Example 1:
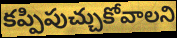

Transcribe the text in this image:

కప్పిపుచ్చుకోవాలని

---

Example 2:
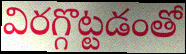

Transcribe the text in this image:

విరగ్గొట్టడంతో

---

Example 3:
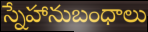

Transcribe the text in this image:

స్నేహానుబంధాలు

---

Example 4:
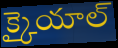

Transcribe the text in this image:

క్కైయాల్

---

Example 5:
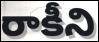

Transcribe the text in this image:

రాకీని